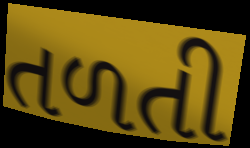
તળતી